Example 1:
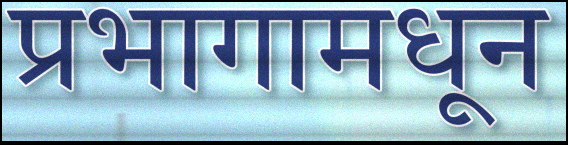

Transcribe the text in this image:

प्रभागामधून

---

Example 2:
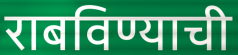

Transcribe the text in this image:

राबविण्याची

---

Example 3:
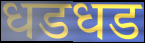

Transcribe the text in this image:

धडधड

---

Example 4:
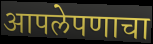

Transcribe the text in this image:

आपलेपणाचा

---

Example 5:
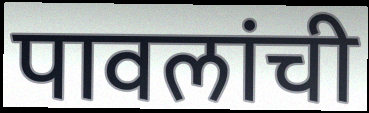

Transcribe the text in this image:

पावलांची